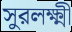
সুরলক্ষ্মী